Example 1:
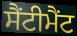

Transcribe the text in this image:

ਸੈਂਟੀਮੈਂਟ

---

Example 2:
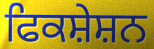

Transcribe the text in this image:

ਫਿਕਸ਼ੇਸ਼ਨ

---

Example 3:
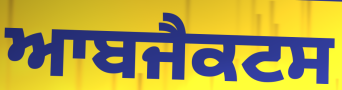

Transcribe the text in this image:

ਆਬਜੈਕਟਸ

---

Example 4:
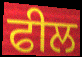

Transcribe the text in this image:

ਫੀਲ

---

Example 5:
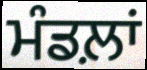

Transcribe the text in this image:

ਮੰਡਲ਼ਾਂ